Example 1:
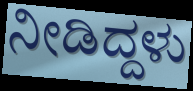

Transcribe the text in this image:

ನೀಡಿದ್ದಳು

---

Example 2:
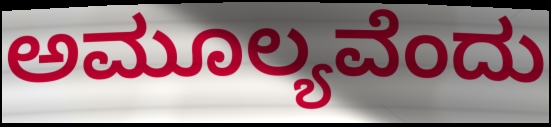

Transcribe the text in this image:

ಅಮೂಲ್ಯವೆಂದು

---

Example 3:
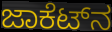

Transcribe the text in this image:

ಜಾಕೆಟ್‌ನ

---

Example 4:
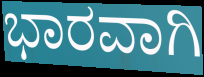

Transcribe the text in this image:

ಭಾರವಾಗಿ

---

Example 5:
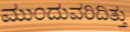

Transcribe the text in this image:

ಮುಂದುವರಿದಿತ್ತು